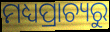
ମଧ୍ୟପ୍ରାଚ୍ୟରୁ